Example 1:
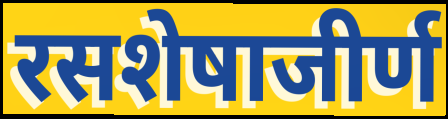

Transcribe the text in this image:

रसशेषाजीर्ण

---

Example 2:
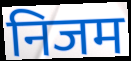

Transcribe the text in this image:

निजम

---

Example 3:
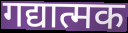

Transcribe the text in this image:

गद्यात्मक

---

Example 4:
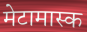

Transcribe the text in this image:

मेटामास्क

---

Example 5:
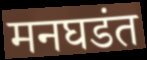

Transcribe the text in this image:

मनघडंत